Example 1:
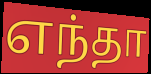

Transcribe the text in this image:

எந்தா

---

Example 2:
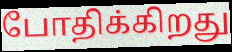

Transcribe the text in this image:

போதிக்கிறது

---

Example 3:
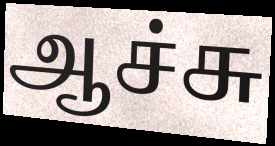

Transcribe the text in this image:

ஆச்சு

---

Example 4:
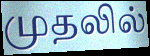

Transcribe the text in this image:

முதலில்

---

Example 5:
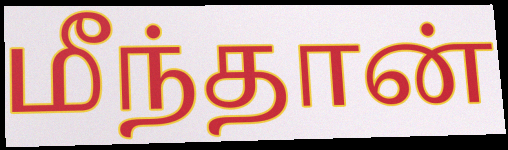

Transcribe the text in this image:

மீந்தான்